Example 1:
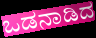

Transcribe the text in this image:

ಒಡನಾಡಿದ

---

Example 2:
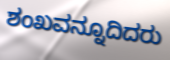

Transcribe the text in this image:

ಶಂಖವನ್ನೂದಿದರು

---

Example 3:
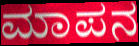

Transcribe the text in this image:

ಮಾಪನ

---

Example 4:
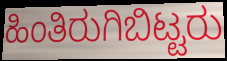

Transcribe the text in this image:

ಹಿಂತಿರುಗಿಬಿಟ್ಟರು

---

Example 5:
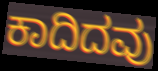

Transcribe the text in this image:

ಕಾದಿದವು